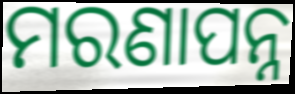
ମରଣାପନ୍ନ